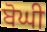
ਬੋਘੀ